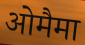
ओमैमा